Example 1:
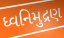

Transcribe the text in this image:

ધ્વનિમુદ્રણ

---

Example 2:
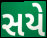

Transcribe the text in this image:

સયે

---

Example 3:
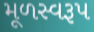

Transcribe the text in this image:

મૂળસ્વરૂપ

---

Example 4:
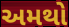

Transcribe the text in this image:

અમથો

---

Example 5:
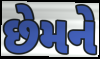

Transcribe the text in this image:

છેમને